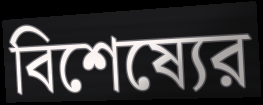
বিশেষ্যের